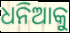
ଧନିଆକୁ